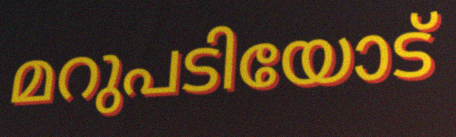
മറുപടിയോട്